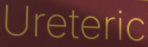
Ureteric